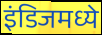
इंडिजमध्ये